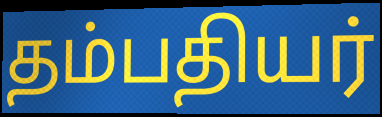
தம்பதியர்